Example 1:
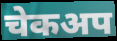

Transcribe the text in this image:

चेकअप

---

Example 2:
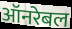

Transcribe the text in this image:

ऑनरेबल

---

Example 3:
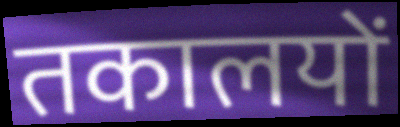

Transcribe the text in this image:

तकालयों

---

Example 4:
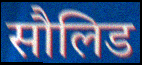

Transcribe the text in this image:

सौलिड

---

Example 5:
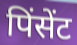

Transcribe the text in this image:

पिंसेंट